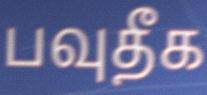
பவுதீக